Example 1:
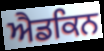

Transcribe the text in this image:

ਐਡਕਿਨ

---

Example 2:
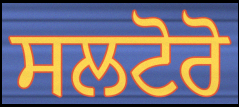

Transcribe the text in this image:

ਸਲਟੋਰੋ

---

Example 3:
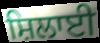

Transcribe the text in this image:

ਸ਼ਿਲਾਈ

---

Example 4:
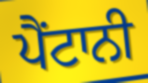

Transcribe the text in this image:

ਪੈਂਟਾਨੀ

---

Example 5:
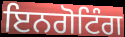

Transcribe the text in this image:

ਇਨਗੋਟਿੰਗ